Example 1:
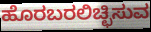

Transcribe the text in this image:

ಹೊರಬರಲಿಚ್ಛಿಸುವ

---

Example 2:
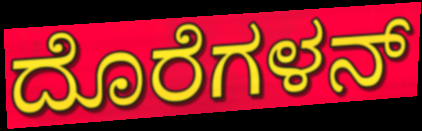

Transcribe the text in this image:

ದೊರೆಗಳನ್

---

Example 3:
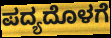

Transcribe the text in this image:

ಪದ್ಯದೊಳಗೆ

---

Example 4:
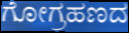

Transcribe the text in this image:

ಗೋಗ್ರಹಣದ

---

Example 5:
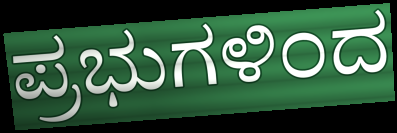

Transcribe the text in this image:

ಪ್ರಭುಗಳಿಂದ